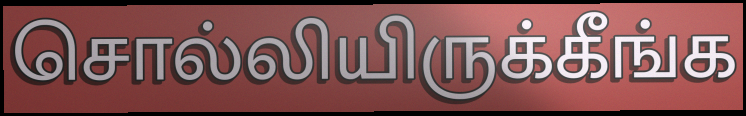
சொல்லியிருக்கீங்க